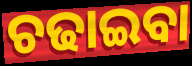
ଚଢାଇବା